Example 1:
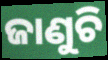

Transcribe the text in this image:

ଜାଣୁଚି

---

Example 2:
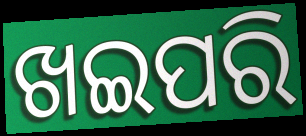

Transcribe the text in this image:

ଖଇପରି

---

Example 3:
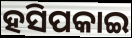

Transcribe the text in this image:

ହସିପକାଇ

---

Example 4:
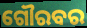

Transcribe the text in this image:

ଗୌରବର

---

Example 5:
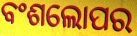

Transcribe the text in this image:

ବଂଶଲୋପର